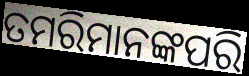
ତମରିମାନଙ୍କପରି